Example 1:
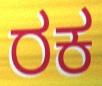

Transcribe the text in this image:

ರಕ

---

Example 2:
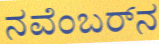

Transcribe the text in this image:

ನವೆಂಬರ್‌ನ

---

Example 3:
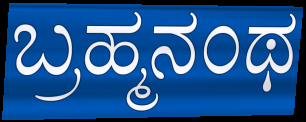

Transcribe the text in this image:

ಬ್ರಹ್ಮನಂಥ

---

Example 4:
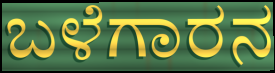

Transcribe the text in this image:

ಬಳೆಗಾರನ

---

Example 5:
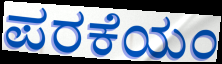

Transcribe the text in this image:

ಪರಕೆಯಂ